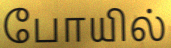
போயில்